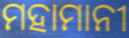
ମହାମାନୀ